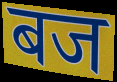
बज